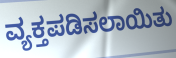
ವ್ಯಕ್ತಪಡಿಸಲಾಯಿತು